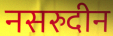
नसरुदीन